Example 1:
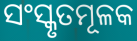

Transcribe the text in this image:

ସଂସ୍କୃତମୂଳକ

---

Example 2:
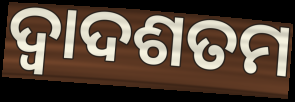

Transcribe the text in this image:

ଦ୍ୱାଦଶତମ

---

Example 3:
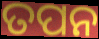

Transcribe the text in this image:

ତପନ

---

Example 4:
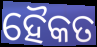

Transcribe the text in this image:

ହୈକତ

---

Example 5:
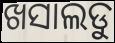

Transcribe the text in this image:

ଖସାଲଡୁ